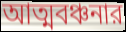
আত্মবঞ্চনার